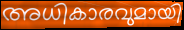
അധികാരവുമായി